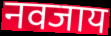
नवजाय